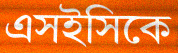
এসইসিকে